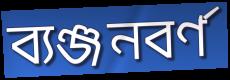
ব্যঞ্জনবৰ্ণ